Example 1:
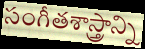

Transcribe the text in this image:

సంగీతశాస్త్రాన్ని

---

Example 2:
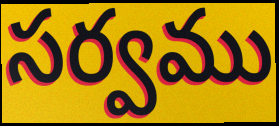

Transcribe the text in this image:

సర్వము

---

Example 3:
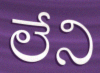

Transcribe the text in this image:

లేని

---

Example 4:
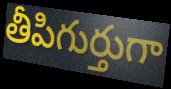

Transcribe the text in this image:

తీపిగుర్తుగా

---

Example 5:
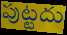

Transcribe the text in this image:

పుట్టదు